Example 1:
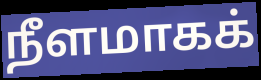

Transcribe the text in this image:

நீளமாகக்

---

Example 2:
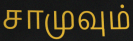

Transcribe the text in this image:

சாமுவும்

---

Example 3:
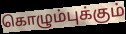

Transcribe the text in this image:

கொழும்புக்கும்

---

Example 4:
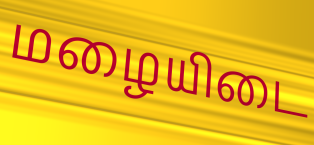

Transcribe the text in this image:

மழையிடை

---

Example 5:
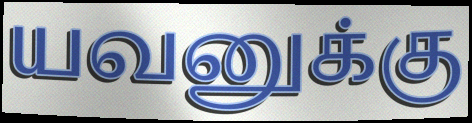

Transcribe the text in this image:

யவனுக்கு